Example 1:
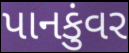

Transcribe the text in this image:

પાનકુંવર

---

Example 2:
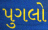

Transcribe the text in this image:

પુગલો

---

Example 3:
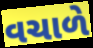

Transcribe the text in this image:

વચાળે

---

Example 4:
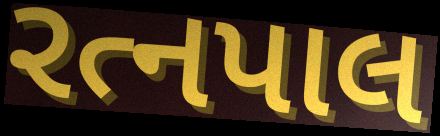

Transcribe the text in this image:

રત્નપાલ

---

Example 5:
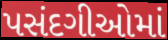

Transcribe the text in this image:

પસંદગીઓમાં